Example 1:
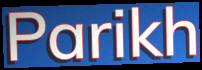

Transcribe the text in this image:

Parikh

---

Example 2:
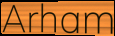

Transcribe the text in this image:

Arham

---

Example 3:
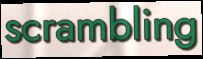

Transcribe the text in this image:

scrambling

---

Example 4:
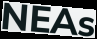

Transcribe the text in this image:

NEAs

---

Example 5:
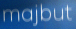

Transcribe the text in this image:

majbut